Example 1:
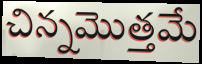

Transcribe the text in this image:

చిన్నమొత్తమే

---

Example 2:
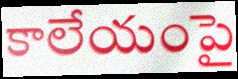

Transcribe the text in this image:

కాలేయంపై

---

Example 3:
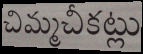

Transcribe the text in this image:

చిమ్మచీకట్లు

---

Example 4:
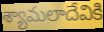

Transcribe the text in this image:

శ్యామలాదేవికి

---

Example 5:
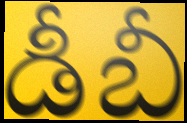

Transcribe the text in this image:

డీబీ